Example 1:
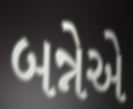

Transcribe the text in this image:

બન્નેએ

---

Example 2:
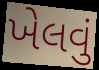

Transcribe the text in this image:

ખેલવું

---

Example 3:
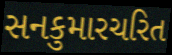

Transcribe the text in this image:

સનકુમારચરિત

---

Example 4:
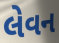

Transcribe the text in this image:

લેવન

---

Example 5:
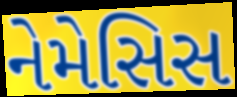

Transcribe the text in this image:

નેમેસિસ